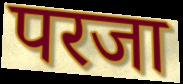
परजा